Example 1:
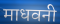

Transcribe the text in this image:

माधवनी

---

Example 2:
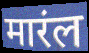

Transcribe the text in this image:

मारंल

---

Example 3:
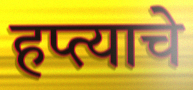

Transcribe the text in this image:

हप्त्याचे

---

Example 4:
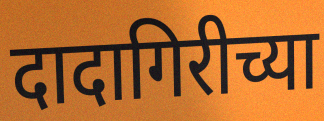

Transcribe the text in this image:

दादागिरीच्या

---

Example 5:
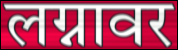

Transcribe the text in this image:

लग्नावर